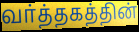
வர்த்தகத்தின்